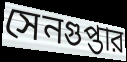
সেনগুপ্তার